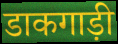
डाकगाड़ी